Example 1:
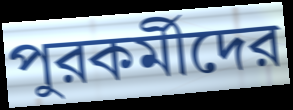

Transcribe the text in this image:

পুরকর্মীদের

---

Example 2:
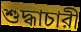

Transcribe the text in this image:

শুদ্ধাচারী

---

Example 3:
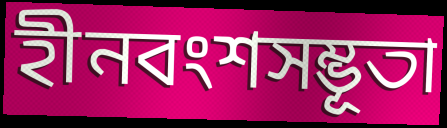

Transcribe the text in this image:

হীনবংশসম্ভূতা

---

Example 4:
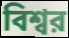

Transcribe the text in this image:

বিশ্বর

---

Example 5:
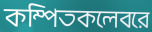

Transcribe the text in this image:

কম্পিতকলেবরে